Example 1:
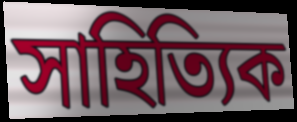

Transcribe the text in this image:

সাহিত্যিক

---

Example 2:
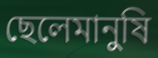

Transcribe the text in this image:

ছেলেমানুষি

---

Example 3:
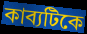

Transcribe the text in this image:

কাব্যটিকে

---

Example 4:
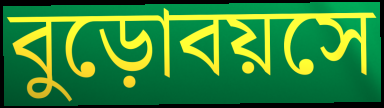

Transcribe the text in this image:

বুড়োবয়সে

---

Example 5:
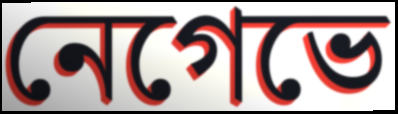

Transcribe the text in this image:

নেগেভে